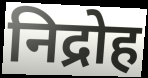
निद्रोह